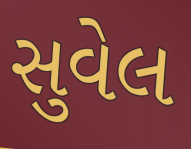
સુવેલ